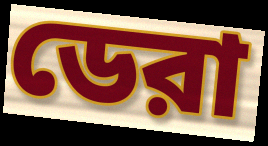
ডেরা